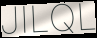
JILQL